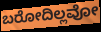
ಬರೋದಿಲ್ಲವೋ